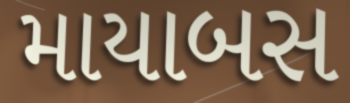
માયાબસ